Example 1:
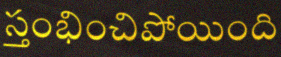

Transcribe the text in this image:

స్తంభించిపోయింది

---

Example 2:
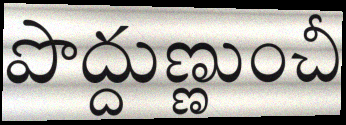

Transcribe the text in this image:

పొద్దుణ్ణుంచీ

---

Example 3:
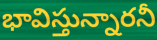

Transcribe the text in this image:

భావిస్తున్నారనీ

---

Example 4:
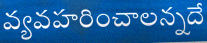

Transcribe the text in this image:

వ్యవహరించాలన్నదే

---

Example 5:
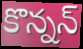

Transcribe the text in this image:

కొన్నన్